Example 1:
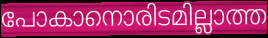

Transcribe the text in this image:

പോകാനൊരിടമില്ലാത്ത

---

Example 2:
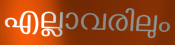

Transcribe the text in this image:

എല്ലാവരിലും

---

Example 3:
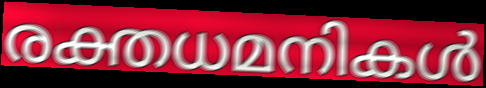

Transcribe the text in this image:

രക്തധമനികൾ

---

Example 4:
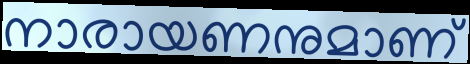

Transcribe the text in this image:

നാരായണനുമാണ്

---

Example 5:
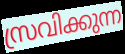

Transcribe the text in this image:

സ്രവിക്കുന്ന